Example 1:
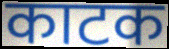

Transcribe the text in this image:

काटक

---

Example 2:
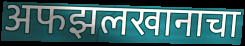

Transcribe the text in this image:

अफझलखानाचा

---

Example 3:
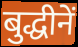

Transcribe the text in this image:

बुद्धीनें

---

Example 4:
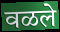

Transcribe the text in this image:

वळले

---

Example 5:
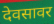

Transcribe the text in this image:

देवसावर